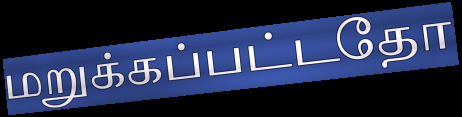
மறுக்கப்பட்டதோ